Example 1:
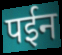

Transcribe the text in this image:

पईन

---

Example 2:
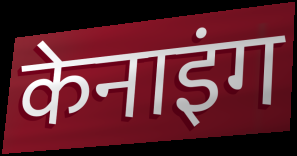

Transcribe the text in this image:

केनाइंग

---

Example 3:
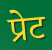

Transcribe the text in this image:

प्रेट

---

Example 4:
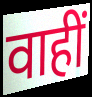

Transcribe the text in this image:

वाहीं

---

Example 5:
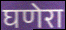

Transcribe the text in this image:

घणेरा